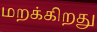
மறக்கிறது